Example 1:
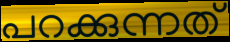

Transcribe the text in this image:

പറക്കുന്നത്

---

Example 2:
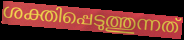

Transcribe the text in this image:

ശക്തിപ്പെടുത്തുന്നത്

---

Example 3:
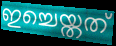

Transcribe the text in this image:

ഇച്ചെയ്തത്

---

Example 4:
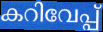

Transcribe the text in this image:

കറിവേപ്പ്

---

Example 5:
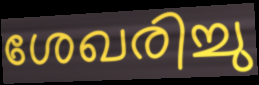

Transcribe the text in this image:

ശേഖരിച്ചു